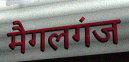
मैगलगंज